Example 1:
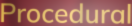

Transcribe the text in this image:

Procedural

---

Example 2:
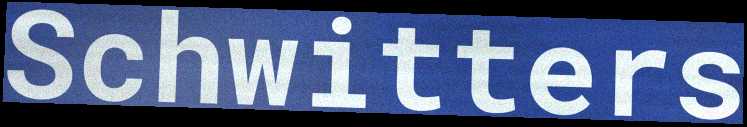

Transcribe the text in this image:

Schwitters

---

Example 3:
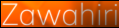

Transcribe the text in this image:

Zawahiri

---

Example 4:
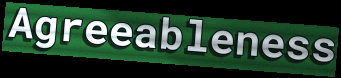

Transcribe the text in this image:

Agreeableness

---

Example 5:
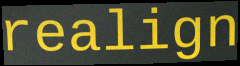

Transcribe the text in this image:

realign